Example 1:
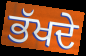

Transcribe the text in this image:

ਭੱਖਦੇ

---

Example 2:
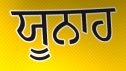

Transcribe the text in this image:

ਯੂਨਾਹ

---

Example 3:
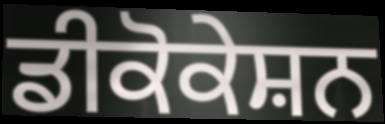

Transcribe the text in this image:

ਡੀਕੋਕੇਸ਼ਨ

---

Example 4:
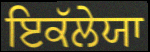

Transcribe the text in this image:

ਇਕੱਲੇਯਾ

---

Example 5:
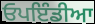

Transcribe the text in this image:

ਓਪਇੰਡੀਆ